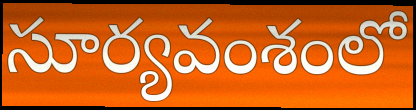
సూర్యవంశంలో